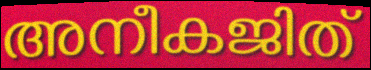
അനീകജിത്